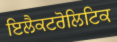
ਇਲੈਕਟਰੋਲਿਟਿਕ